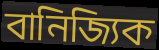
বানিজ্যিক